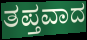
ತಪ್ತವಾದ